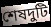
শেষদুটি